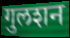
गुलशन